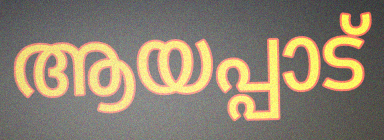
ആയപ്പാട്